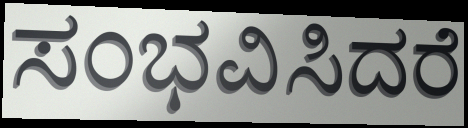
ಸಂಭವಿಸಿದರೆ